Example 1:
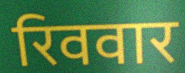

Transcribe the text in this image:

रिववार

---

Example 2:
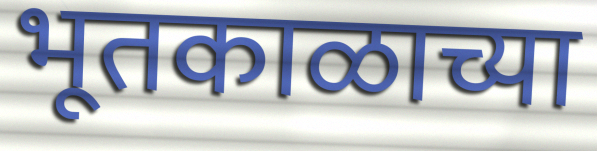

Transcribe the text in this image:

भूतकाळाच्या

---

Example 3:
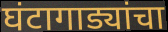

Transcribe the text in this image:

घंटागाड्यांचा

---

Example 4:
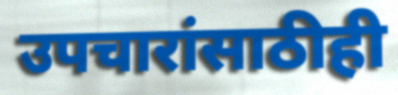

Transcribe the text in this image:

उपचारांसाठीही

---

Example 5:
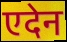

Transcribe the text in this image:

एदेन